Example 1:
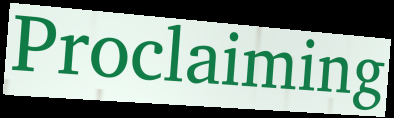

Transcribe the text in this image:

Proclaiming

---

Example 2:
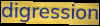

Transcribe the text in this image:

digression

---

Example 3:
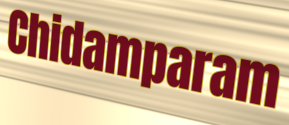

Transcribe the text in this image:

Chidamparam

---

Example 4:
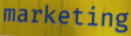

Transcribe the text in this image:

marketing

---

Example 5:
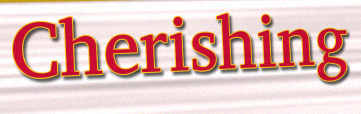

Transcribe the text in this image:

Cherishing